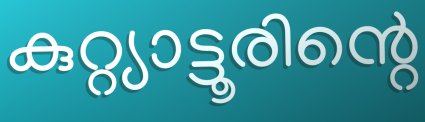
കുറ്റ്യാട്ടൂരിന്റെ